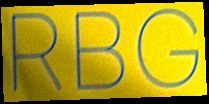
RBG